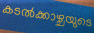
കടൽക്കാഴ്ചയുടെ